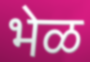
भेळ